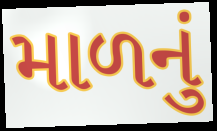
માળનું